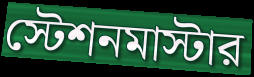
স্টেশনমাস্টার